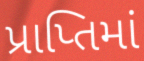
પ્રાપ્તિમાં